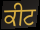
ਕੀਟ